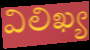
విలిఖ్య